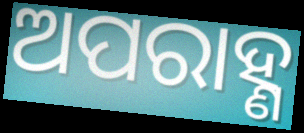
ଅପରାହ୍ଣ